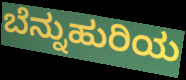
ಬೆನ್ನುಹುರಿಯ